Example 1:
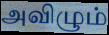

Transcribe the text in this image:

அவிழும்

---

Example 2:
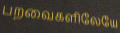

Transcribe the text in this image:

பறவைகளிலேயே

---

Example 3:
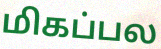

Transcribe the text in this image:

மிகப்பல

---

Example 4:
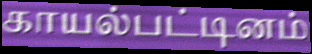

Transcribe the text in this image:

காயல்பட்டினம்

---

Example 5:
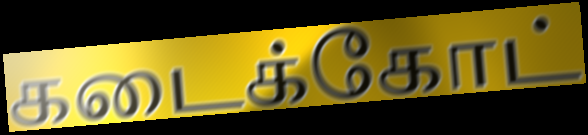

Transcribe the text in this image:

கடைக்கோட்